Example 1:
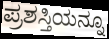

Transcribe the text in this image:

ಪ್ರಶಸ್ತಿಯನ್ನೂ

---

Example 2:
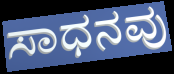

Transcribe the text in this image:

ಸಾಧನವು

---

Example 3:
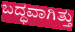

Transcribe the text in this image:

ಬದ್ಧವಾಗಿತ್ತು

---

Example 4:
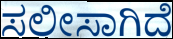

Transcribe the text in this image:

ಸಲೀಸಾಗಿದೆ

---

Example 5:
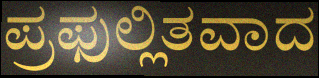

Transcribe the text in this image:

ಪ್ರಫುಲ್ಲಿತವಾದ